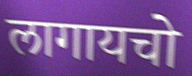
लागायचो